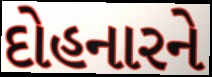
દોહનારને